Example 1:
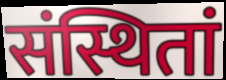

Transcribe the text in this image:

संस्थितां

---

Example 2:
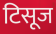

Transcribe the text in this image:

टिसूज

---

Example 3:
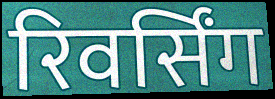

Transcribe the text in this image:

रिवर्सिंग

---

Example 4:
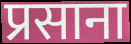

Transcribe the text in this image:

प्रसाना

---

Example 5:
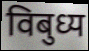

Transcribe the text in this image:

विबुध्य